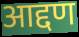
आद्दण